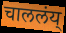
चाललंय्